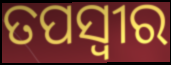
ତପସ୍ଵୀର